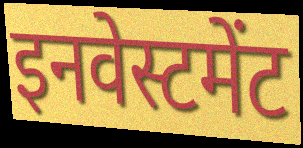
इनवेस्टमेंट